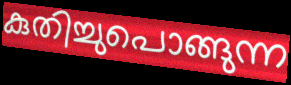
കുതിച്ചുപൊങ്ങുന്ന